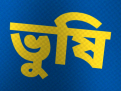
ভুষি